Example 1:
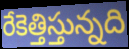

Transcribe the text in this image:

రేకెత్తిస్తున్నది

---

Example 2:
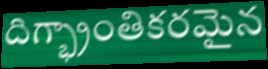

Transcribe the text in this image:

దిగ్భ్రాంతికరమైన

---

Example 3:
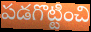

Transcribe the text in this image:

పడగొట్టించి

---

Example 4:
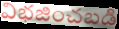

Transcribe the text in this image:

విభజించబడి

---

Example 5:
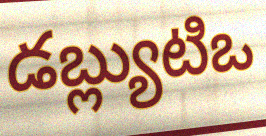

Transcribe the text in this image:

డబ్ల్యుటిఒ